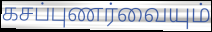
கசப்புணர்வையும்